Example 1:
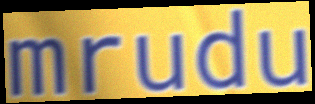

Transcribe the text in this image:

mrudu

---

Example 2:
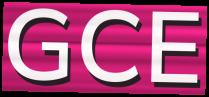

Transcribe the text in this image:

GCE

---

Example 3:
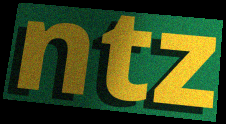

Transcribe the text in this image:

ntz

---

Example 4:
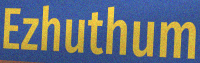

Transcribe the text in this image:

Ezhuthum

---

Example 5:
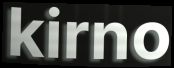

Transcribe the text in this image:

kirno